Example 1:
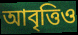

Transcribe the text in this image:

আবৃত্তিও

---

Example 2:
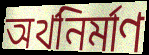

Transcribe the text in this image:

অর্থনির্মাণ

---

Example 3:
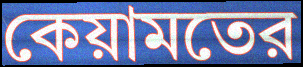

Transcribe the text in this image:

কেয়ামতের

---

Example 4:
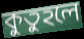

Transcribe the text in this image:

কুতুহলে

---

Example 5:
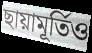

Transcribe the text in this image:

ছায়ামূর্তিও